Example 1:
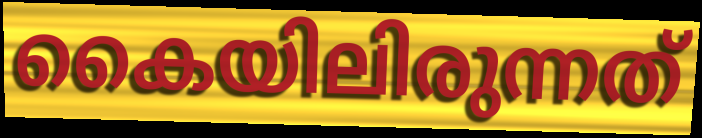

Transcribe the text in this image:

കൈയിലിരുന്നത്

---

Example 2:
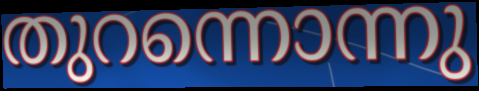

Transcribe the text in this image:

തുറന്നൊന്നു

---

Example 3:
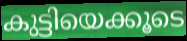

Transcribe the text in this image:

കുട്ടിയെക്കൂടെ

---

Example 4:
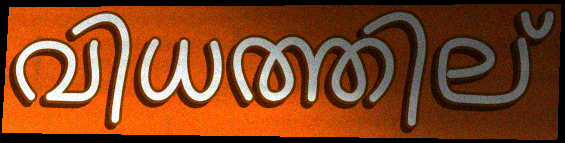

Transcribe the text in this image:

വിധത്തില്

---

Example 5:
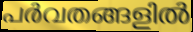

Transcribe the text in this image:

പർവതങ്ങളിൽ